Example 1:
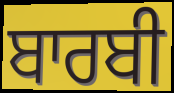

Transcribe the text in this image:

ਬਾਰਬੀ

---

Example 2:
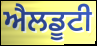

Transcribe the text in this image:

ਐਲਡੂਟੀ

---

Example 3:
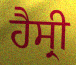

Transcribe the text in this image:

ਹੈਸ੍ਰੀ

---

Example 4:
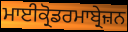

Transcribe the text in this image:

ਮਾਈਕ੍ਰੋਡਰਮਾਬ੍ਰੇਜ਼ਨ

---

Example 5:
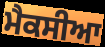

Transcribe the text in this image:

ਮੈਕਸੀਆ